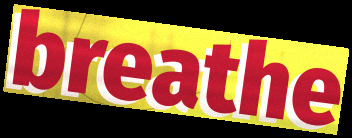
breathe